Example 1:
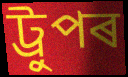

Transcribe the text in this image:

ট্ৰুপৰ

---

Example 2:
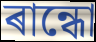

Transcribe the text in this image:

ৰান্ধো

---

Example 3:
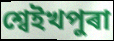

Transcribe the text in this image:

শ্বেইখপুৰা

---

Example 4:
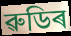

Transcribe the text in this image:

ৱুডিৰ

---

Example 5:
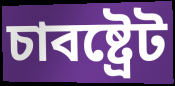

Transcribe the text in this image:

চাবষ্ট্ৰেট